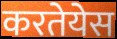
करतेयेस